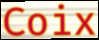
Coix